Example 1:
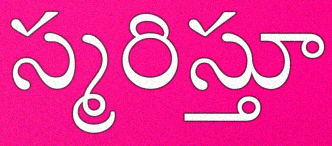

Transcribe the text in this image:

స్మరిస్తూ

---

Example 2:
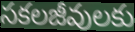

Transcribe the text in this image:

సకలజీవులకు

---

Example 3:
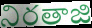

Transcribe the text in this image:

నిరతాజి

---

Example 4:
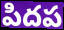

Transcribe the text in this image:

పిదప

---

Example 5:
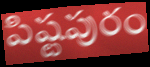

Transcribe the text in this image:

పిష్టపురం